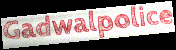
Gadwalpolice